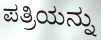
ಪತ್ರಿಯನ್ನು